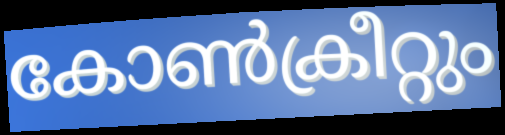
കോൺക്രീറ്റും